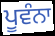
ਪੂਵੰਨਾ